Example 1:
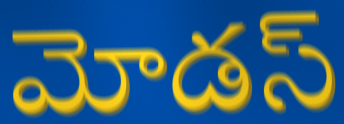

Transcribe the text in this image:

మోడస్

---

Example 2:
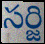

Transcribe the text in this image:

సర్జి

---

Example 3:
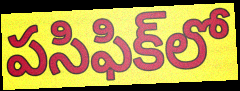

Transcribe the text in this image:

పసిఫిక్‌లో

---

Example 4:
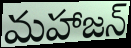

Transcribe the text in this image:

మహాజన్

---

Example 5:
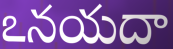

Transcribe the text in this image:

ఽనయదా